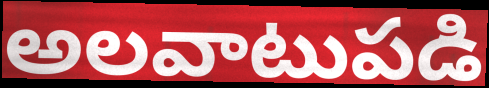
అలవాటుపడి